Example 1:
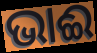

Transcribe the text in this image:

ଭାଈ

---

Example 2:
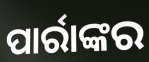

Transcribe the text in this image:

ପାର୍ରାଙ୍କର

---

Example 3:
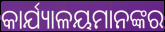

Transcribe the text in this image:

କାର୍ଯ୍ୟାଳୟମାନଙ୍କର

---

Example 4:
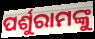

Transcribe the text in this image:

ପର୍ଶୁରାମଙ୍କୁ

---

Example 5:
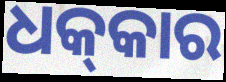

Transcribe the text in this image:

ଧକ୍‍କାର